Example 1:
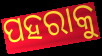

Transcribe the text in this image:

ପହରାକୁ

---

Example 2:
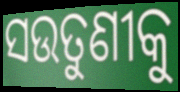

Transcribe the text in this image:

ସଉତୁଣୀକୁ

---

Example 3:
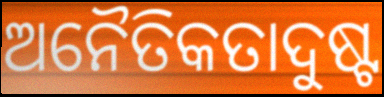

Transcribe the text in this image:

ଅନୈତିକତାଦୁଷ୍ଟ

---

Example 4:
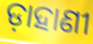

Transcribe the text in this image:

ଡ଼ାହାଣୀ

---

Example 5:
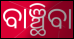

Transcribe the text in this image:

ବାଞ୍ଛିବା